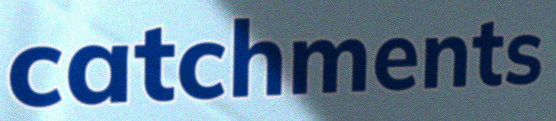
catchments